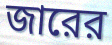
জারের